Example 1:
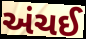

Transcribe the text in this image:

અંચઈ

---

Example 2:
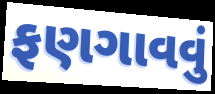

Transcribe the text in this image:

ફણગાવવું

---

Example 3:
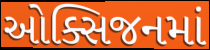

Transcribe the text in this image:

ઓક્સિજનમાં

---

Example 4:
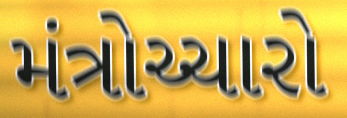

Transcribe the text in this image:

મંત્રોચ્ચારો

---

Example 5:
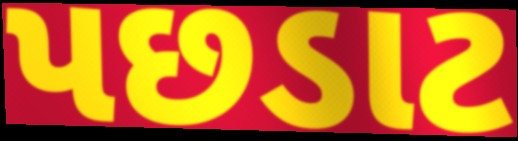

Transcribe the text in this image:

પછડાટ